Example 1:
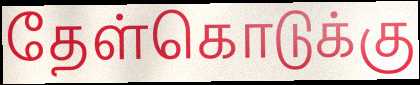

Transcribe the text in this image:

தேள்கொடுக்கு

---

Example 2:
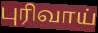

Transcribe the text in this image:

புரிவாய்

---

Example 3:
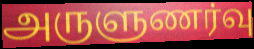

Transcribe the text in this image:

அருளுணர்வு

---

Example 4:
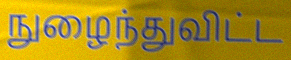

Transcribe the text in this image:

நுழைந்துவிட்ட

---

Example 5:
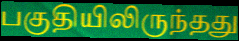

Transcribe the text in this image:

பகுதியிலிருந்தது